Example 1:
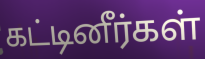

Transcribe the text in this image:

கட்டினீர்கள்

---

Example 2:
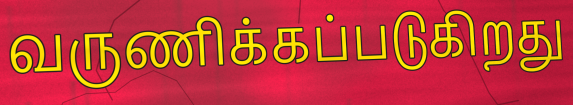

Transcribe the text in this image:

வருணிக்கப்படுகிறது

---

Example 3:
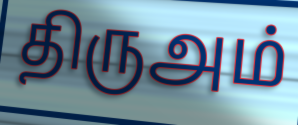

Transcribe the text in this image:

திருஅம்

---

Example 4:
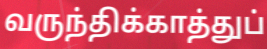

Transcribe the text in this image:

வருந்திக்காத்துப்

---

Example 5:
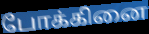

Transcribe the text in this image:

போக்கினை